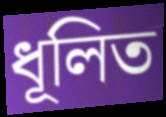
ধূলিত